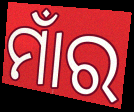
ମାଁର